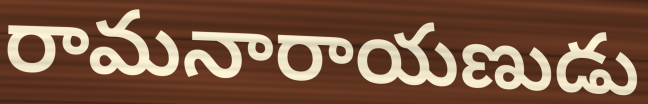
రామనారాయణుడు